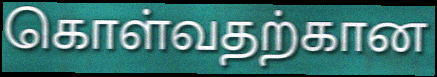
கொள்வதற்கான